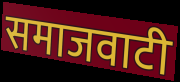
समाजवाटी